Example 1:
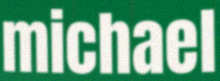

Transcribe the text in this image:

michael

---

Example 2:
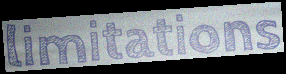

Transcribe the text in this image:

limitations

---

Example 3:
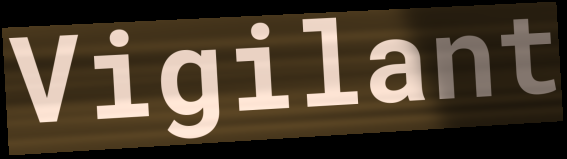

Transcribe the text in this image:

Vigilant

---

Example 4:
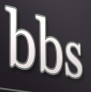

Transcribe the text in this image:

bbs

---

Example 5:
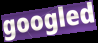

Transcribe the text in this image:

googled